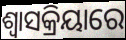
ଶ୍ୱାସକ୍ରିୟାରେ